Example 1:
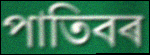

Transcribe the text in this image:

পাতিবৰ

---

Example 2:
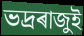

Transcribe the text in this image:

ভদ্ৰৰাজুই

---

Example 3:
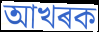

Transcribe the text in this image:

আখৰক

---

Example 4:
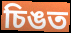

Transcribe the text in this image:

চিঙত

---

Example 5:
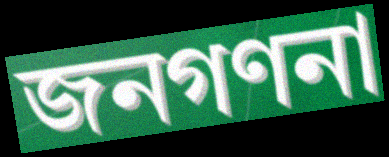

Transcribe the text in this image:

জনগণনা